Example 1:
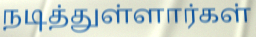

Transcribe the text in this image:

நடித்துள்ளார்கள்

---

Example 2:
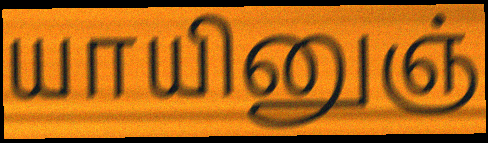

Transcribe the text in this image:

யாயினுஞ்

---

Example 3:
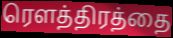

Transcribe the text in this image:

ரௌத்திரத்தை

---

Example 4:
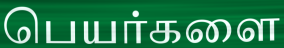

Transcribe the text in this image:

பெயர்களை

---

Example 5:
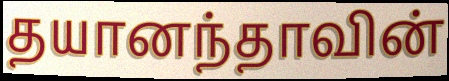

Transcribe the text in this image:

தயானந்தாவின்